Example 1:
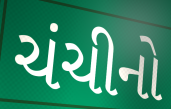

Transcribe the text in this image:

ચંચીનો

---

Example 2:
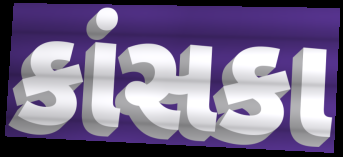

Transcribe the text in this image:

કાંસકા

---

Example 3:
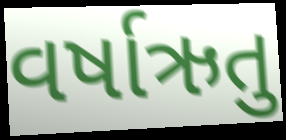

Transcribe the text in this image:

વર્ષાઋતુ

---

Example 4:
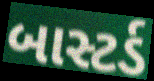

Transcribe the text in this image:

બાસ્ટર્ડ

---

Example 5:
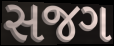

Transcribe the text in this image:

સજગ